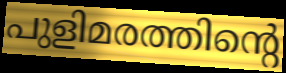
പുളിമരത്തിന്റെ